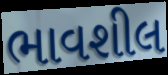
ભાવશીલ